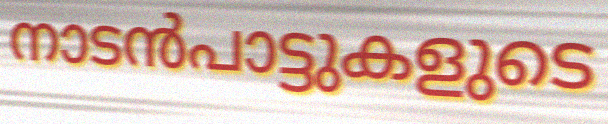
നാടൻപാട്ടുകളുടെ